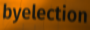
byelection